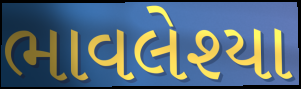
ભાવલેશ્યા